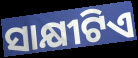
ସାକ୍ଷୀଟିଏ